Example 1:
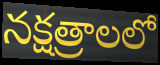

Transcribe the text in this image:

నక్షత్రాలలో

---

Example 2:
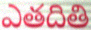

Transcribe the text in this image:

ఎతదితి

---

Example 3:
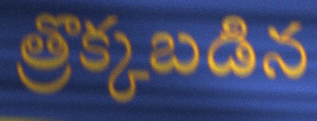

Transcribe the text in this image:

త్రొక్కబడిన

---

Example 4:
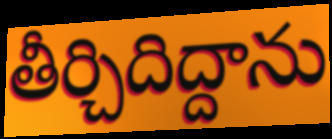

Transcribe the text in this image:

తీర్చిదిద్దాను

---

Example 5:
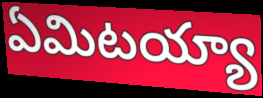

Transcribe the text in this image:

ఏమిటయ్యా